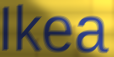
Ikea